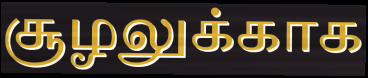
சூழலுக்காக